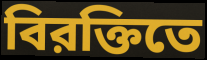
বিরক্তিতে